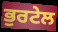
ਭੁਰਟੇਲ